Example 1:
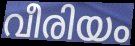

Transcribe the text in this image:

വീരിയം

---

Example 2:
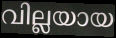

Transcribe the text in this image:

വില്ലയായ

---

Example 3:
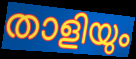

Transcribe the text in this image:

താളിയും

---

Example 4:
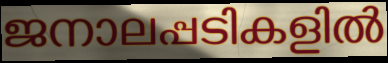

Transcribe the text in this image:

ജനാലപ്പടികളിൽ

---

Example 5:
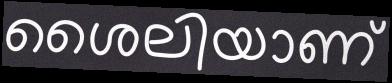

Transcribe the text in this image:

ശൈലിയാണ്